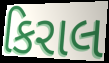
કિરાલ